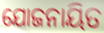
ଯୋଜନାୟିତ